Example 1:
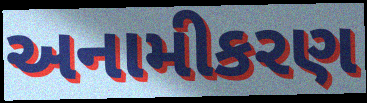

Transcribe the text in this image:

અનામીકરણ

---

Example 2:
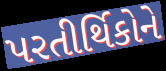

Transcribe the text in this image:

પરતીર્થિકોને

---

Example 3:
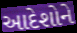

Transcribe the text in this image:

આદેશોને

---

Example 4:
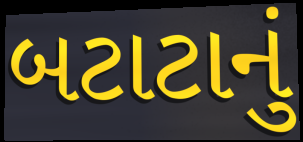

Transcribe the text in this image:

બટાટાનું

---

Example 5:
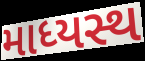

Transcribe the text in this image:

માધ્યસ્થ